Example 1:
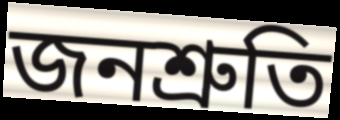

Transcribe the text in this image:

জনশ্রুতি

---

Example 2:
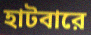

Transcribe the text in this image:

হাটবারে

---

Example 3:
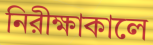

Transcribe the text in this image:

নিরীক্ষাকালে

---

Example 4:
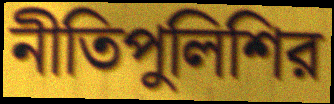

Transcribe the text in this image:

নীতিপুলিশির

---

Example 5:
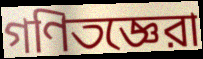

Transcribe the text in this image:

গণিতজ্ঞেরা